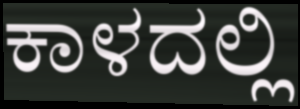
ಕಾಳದಲ್ಲಿ